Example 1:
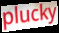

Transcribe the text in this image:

plucky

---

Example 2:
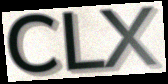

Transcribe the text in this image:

CLX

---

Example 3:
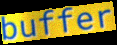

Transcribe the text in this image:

buffer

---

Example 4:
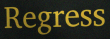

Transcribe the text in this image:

Regress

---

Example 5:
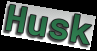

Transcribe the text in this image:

Husk